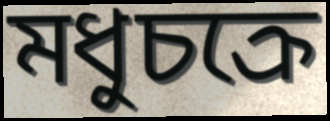
মধুচক্রে